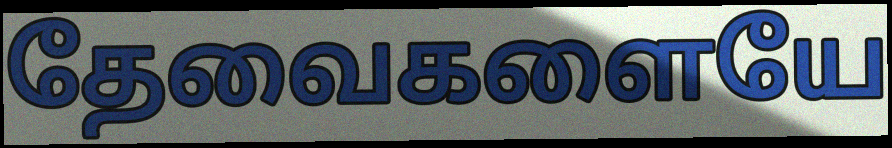
தேவைகளையே